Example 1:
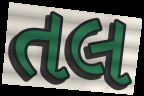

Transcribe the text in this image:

તલ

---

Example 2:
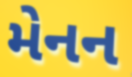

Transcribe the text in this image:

મેનન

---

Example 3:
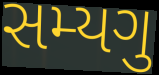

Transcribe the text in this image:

સમ્યગુ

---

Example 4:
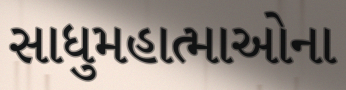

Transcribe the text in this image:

સાધુમહાત્માઓના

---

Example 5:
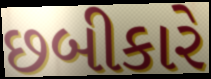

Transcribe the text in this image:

છબીકારે